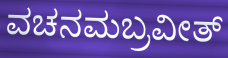
ವಚನಮಬ್ರವೀತ್